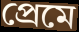
প্ৰেমে